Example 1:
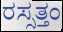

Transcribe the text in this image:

ರಸ್ಸತ್ತಂ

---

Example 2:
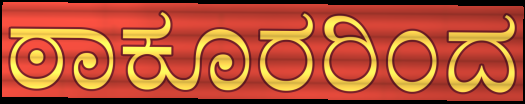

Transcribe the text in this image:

ಠಾಕೂರರಿಂದ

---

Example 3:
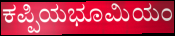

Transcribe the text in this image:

ಕಪ್ಪಿಯಭೂಮಿಯಂ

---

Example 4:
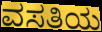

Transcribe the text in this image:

ವಸತಿಯ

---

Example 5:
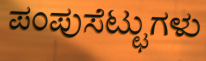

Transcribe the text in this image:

ಪಂಪುಸೆಟ್ಟುಗಳು